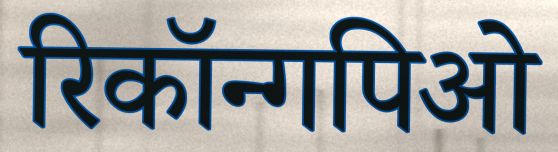
रिकॉन्गपिओ